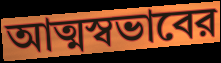
আত্মস্বভাবের